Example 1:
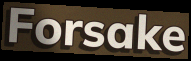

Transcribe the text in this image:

Forsake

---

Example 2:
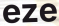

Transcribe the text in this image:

eze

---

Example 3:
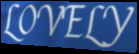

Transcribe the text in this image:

LOVELY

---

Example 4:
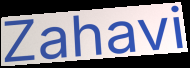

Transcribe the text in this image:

Zahavi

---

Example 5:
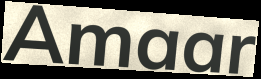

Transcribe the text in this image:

Amaar